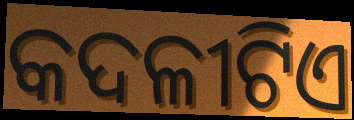
କଦଳୀଟିଏ